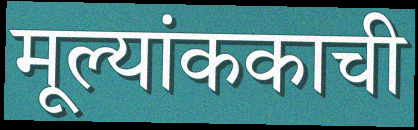
मूल्यांककाची